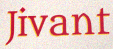
Jivant